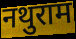
नथुराम